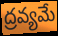
ద్రవ్యమే